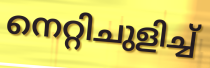
നെറ്റിചുളിച്ച്